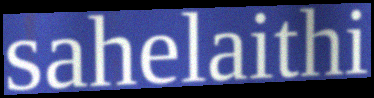
sahelaithi